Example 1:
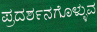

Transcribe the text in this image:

ಪ್ರದರ್ಶನಗೊಳ್ಳುವ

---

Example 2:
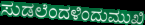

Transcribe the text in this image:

ಸುಡಲೆಂದಳಿಂದುಮುಖಿ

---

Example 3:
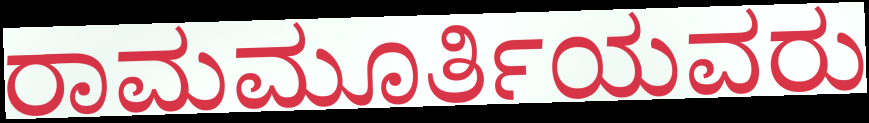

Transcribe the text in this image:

ರಾಮಮೂರ್ತಿಯವರು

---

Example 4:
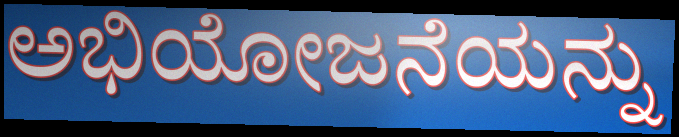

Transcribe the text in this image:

ಅಭಿಯೋಜನೆಯನ್ನು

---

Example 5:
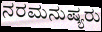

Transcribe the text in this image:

ನರಮನುಷ್ಯರು